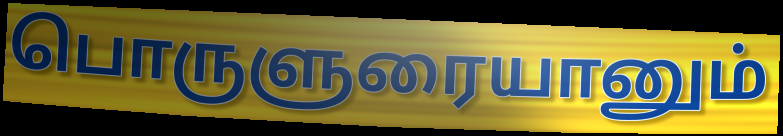
பொருளுரையானும்